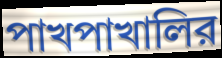
পাখপাখালির